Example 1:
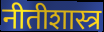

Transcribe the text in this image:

नीतीशास्त्र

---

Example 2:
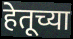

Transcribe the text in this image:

हेतूच्या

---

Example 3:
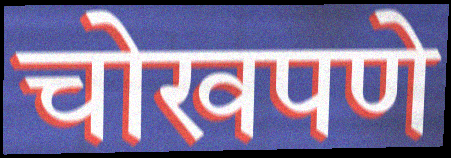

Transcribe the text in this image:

चोखपणे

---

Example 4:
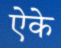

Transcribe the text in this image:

ऐके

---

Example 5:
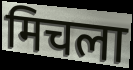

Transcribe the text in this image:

मिचला